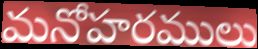
మనోహరములు